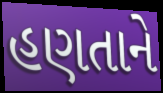
હણતાને